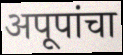
अपूपांचा